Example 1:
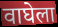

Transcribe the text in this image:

वाघेला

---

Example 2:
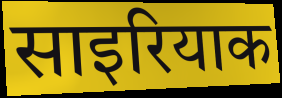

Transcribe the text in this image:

साइरियाक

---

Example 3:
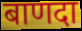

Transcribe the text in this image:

बाणदा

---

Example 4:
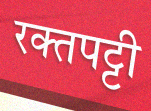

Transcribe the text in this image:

रक्तपट्टी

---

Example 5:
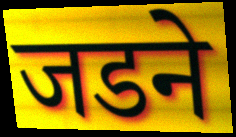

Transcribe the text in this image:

जडने